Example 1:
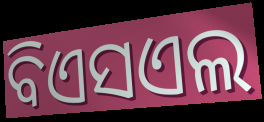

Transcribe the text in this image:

ବିଏସଏଲ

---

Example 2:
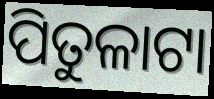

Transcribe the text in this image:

ପିତୁଳାଟା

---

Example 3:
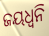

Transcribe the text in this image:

ଜୟଧ୍ଵନି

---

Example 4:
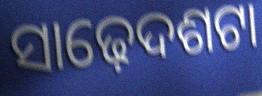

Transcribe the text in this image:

ସାଢ଼େଦଶଟା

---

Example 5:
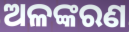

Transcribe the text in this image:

ଅଳଙ୍କରଣ